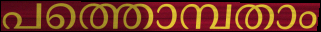
പത്തൊമ്പതാം